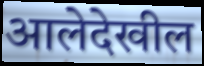
आलेदेखील